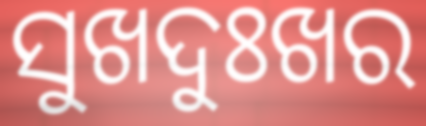
ସୁଖଦୁଃଖର